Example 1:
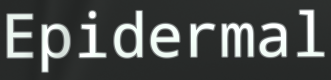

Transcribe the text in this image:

Epidermal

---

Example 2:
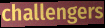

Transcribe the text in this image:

challengers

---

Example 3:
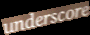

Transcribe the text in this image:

underscore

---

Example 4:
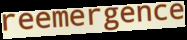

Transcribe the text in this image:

reemergence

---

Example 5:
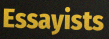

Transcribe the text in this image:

Essayists